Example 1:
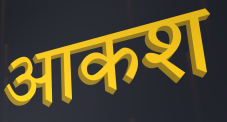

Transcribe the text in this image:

आकश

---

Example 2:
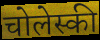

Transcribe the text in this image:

चोलेस्की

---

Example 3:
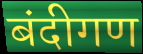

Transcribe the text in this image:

बंदीगण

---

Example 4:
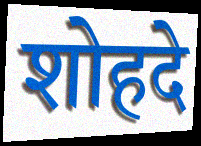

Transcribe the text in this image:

शोहदे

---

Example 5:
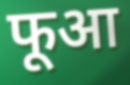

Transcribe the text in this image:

फूआ